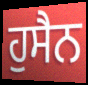
ਹੁਸੈਨ